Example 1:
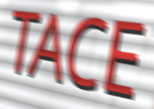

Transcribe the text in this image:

TACE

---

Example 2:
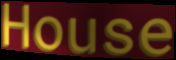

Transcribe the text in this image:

House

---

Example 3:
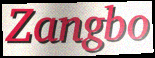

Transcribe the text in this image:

Zangbo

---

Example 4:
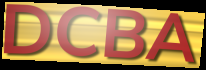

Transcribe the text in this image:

DCBA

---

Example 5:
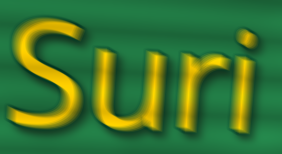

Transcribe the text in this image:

Suri